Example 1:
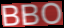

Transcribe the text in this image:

BBO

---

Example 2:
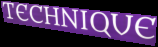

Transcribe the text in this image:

TECHNIQUE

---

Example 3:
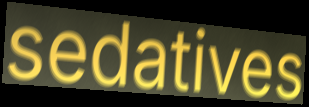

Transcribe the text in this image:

sedatives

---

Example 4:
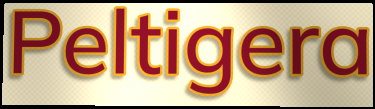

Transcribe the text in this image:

Peltigera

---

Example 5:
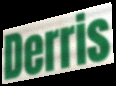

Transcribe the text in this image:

Derris